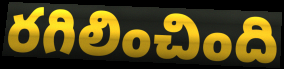
రగిలించింది